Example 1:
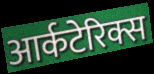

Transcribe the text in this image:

आर्कटेरिक्स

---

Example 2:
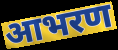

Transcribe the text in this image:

आभरण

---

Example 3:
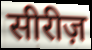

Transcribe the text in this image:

सीरीज़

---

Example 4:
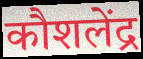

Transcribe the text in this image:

कौशलेंद्र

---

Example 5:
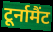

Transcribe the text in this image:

टूर्नामैंट